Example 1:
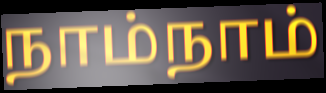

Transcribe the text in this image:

நாம்நாம்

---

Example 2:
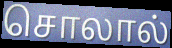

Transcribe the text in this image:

சொலால்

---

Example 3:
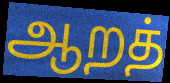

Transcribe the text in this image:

ஆறத்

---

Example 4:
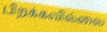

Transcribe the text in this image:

பிறக்கவில்லை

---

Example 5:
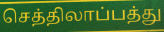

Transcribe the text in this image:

செத்திலாப்பத்து